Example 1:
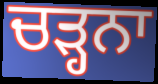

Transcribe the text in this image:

ਚੜ੍ਹਨਾ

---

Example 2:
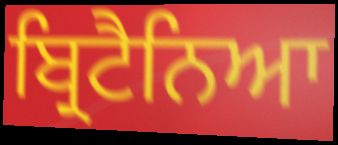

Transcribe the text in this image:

ਬ੍ਰਿਟੈਨਿਆ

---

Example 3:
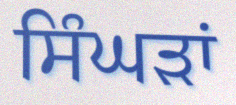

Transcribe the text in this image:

ਸਿੰਘੜਾਂ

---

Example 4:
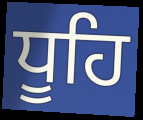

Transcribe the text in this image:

ਧੂਹਿ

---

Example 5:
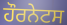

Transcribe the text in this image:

ਹੌਰਨੇਟਸ